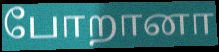
போறானா